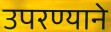
उपरण्याने